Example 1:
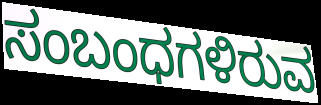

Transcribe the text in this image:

ಸಂಬಂಧಗಳಿರುವ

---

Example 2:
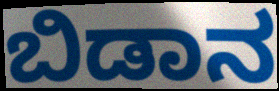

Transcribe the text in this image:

ಬಿಡಾನ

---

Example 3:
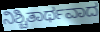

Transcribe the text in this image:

ನಿಶ್ಚಿತಾರ್ಥವಾದ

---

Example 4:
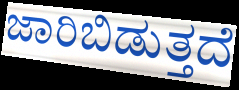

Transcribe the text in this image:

ಜಾರಿಬಿಡುತ್ತದೆ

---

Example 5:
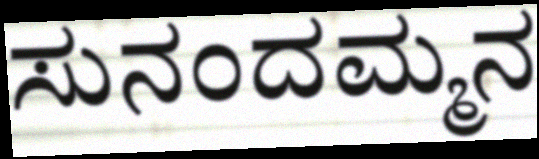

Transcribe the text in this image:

ಸುನಂದಮ್ಮನ